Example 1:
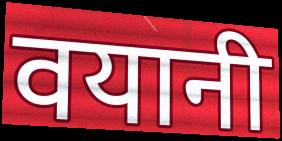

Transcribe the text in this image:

वयानी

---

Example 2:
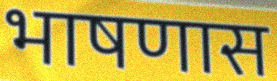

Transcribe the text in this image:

भाषणास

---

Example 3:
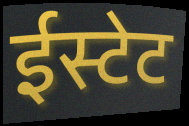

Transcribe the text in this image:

ईस्टेट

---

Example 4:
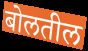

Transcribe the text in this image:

बोलतील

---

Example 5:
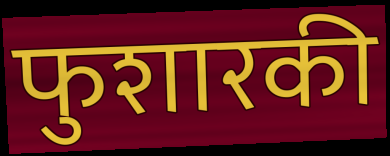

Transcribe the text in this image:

फुशारकी